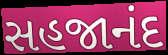
સહજાનંદ